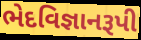
ભેદવિજ્ઞાનરૂપી